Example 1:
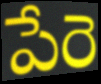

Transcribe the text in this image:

పేరె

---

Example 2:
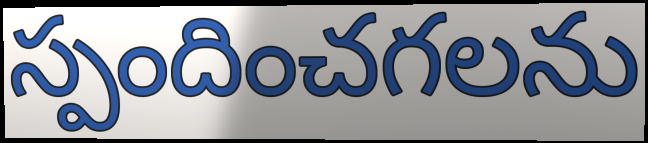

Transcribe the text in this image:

స్పందించగలను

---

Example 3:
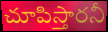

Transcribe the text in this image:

చూపిస్తారనీ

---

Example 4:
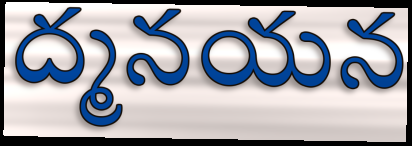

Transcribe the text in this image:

ద్మనయన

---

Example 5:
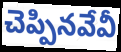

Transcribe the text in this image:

చెప్పినవేవీ